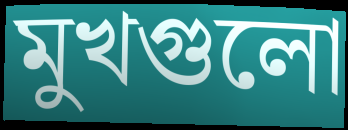
মুখগুলো